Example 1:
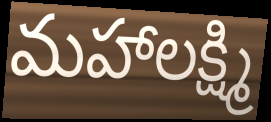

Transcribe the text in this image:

మహాలక్ష్మి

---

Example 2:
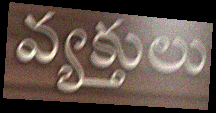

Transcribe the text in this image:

వ్యక్తులు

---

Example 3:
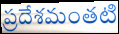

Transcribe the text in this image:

ప్రదేశమంతటి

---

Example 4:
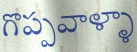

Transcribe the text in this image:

గొప్పవాళ్ళా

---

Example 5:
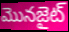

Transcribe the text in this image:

మొనజైట్